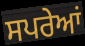
ਸਪਰੇਆਂ